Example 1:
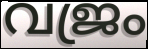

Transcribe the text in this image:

വജ്രം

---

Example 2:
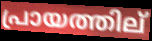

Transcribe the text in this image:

പ്രായത്തില്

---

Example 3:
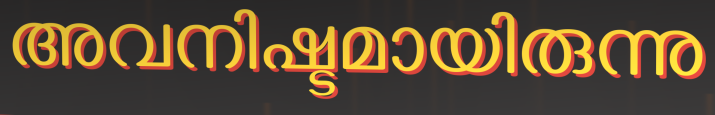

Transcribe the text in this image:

അവനിഷ്ടമായിരുന്നു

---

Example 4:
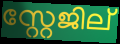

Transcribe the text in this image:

സ്റ്റേജില്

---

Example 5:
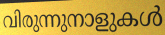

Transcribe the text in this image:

വിരുന്നുനാളുകൾ